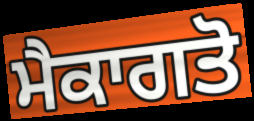
ਮੈਕਾਗਤੋ